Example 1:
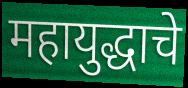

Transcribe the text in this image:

महायुद्धाचे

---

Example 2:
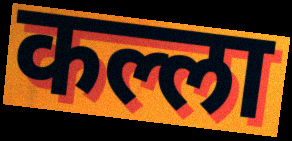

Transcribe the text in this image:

कल्ला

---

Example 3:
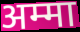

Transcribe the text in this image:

अम्मा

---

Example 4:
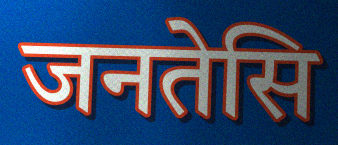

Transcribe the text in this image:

जनतेसि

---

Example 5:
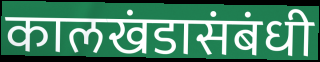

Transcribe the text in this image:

कालखंडासंबंधी